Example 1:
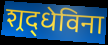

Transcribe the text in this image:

श्रद्धेविना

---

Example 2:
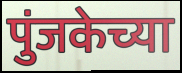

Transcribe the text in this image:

पुंजकेच्या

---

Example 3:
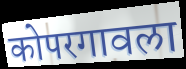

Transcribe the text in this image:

कोपरगावला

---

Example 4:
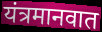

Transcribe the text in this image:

यंत्रमानवात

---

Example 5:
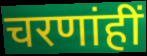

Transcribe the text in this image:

चरणांहीं